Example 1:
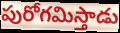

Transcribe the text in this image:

పురోగమిస్తాడు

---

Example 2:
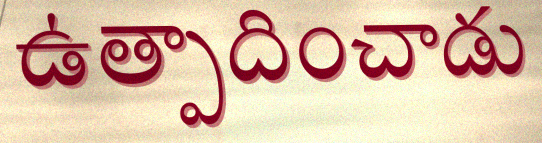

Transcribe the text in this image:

ఉత్పాదించాడు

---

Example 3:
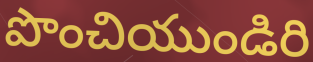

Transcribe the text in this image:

పొంచియుండిరి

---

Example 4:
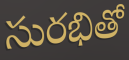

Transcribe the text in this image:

సురభితో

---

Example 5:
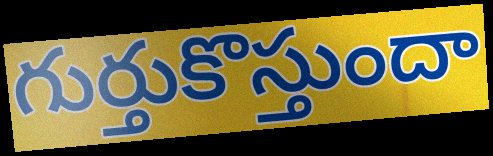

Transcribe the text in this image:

గుర్తుకొస్తుందా